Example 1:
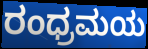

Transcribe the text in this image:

ರಂಧ್ರಮಯ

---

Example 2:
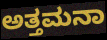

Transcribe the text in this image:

ಅತ್ತಮನಾ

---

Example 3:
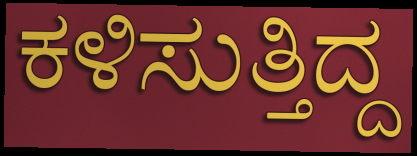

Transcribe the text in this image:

ಕಳಿಸುತ್ತಿದ್ದ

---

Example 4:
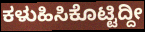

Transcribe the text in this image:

ಕಳುಹಿಸಿಕೊಟ್ಟಿದ್ದೀ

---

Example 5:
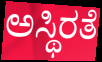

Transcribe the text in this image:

ಅಸ್ಥಿರತೆ